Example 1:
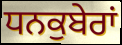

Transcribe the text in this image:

ਧਨਕੁਬੇਰਾਂ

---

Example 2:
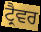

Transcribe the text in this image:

ਟ੍ਰੈਵਰ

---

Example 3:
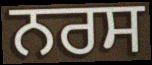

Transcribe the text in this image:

ਨਰਸ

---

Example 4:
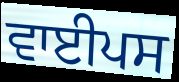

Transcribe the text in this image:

ਵਾਈਪਸ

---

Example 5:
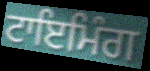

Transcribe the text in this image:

ਟਾਇਮਿੰਗ